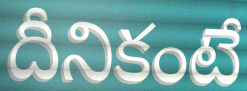
దీనికంటే